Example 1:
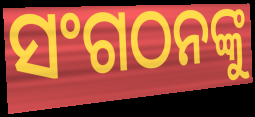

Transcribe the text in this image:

ସଂଗଠନଙ୍କୁ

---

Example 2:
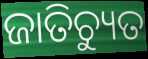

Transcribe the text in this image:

ଜାତିଚ୍ୟୁତ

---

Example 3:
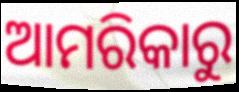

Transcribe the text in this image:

ଆମରିକାରୁ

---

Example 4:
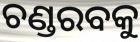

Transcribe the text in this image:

ଚଣ୍ଡରବକୁ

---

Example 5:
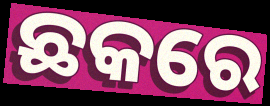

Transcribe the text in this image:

ଛକରେ